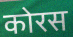
कोरस